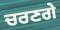
ਚਰਣਗੇ